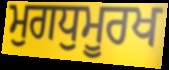
ਮੁਗਧੁਮੂਰਖ